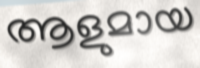
ആളുമായ